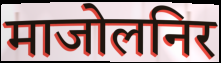
माजोलनिर